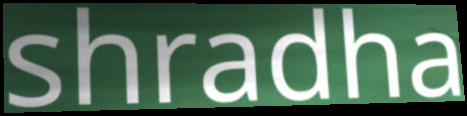
shradha